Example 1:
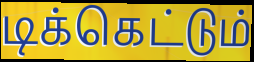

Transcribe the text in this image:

டிக்கெட்டும்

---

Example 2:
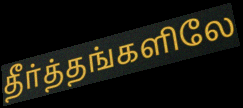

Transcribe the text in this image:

தீர்த்தங்களிலே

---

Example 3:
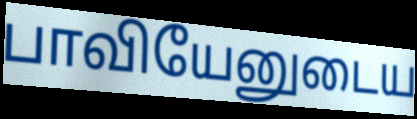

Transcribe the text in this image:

பாவியேனுடைய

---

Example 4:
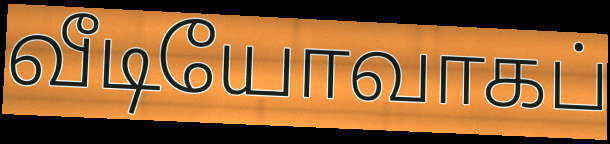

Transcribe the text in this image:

வீடியோவாகப்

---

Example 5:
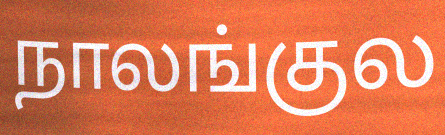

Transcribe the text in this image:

நாலங்குல